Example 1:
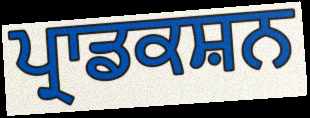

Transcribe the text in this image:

ਪ੍ਰਾਡਕਸ਼ਨ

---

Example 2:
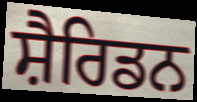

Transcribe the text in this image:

ਸ਼ੈਰਿਡਨ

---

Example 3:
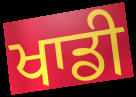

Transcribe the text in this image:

ਖਾਡੀ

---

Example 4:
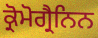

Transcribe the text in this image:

ਕ੍ਰੋਮੋਗ੍ਰੈਨਿਨ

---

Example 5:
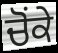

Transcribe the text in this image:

ਚੋਂਕੇ